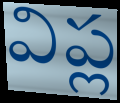
విప్ల